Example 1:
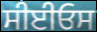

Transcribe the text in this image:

ਸੀਈਓਸ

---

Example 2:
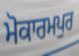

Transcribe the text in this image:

ਮੋਕਾਰਮਪੁਰ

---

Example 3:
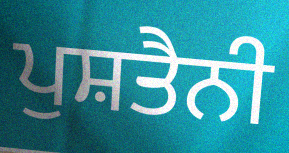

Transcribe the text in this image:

ਪੁਸ਼ਤੈਨੀ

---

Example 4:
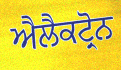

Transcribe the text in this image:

ਐਲੈਕਟ੍ਰੋਨ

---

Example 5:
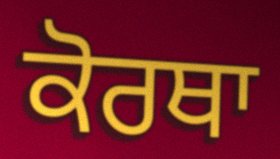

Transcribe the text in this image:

ਕੋਰਥਾ